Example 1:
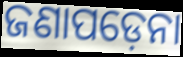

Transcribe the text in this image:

ଜଣାପଡ଼େନା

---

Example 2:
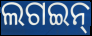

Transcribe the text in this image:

ଲଗଇନ୍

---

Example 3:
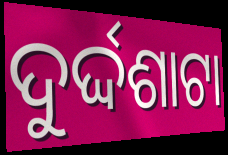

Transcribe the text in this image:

ଦୁର୍ଦ୍ଦଶାଟା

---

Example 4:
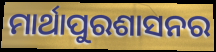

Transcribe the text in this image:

ମାର୍ଥାପୁରଶାସନର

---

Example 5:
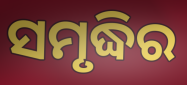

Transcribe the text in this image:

ସମୃଦ୍ଧିର